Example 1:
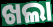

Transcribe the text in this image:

ଖଲା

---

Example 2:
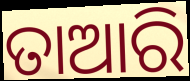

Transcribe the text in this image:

ତାଆରି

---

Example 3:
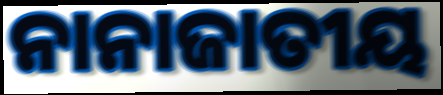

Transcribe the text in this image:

ନାନାଜାତୀୟ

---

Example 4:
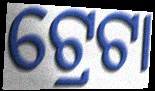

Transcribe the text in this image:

ଟ୍ରେଟା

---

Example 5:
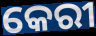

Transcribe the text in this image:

କେରୀ